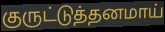
குருட்டுத்தனமாய்